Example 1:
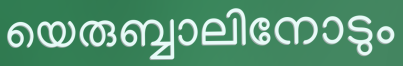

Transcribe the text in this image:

യെരുബ്ബാലിനോടും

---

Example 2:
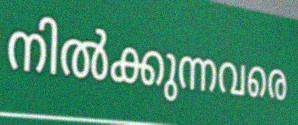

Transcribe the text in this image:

നിൽക്കുന്നവരെ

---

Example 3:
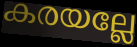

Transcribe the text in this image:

കരയല്ലേ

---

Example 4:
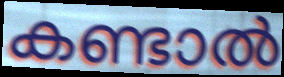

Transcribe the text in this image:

കണ്ടാൽ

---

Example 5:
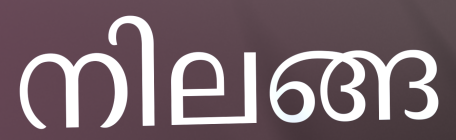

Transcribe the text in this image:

നിലങ്ങ